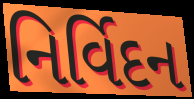
નિર્વિદન